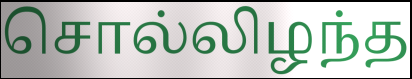
சொல்லிழந்த